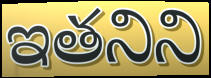
ఇతనిని